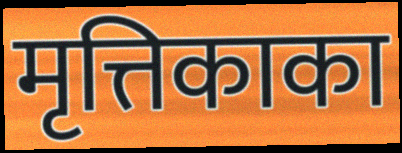
मृत्तिकाका